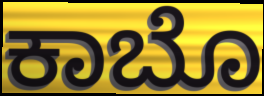
ಕಾಬೊ